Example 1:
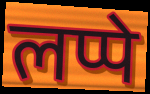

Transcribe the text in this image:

लप्पे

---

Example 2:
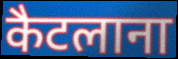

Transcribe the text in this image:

कैटलाना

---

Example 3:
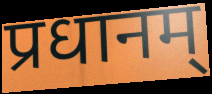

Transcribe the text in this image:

प्रधानम्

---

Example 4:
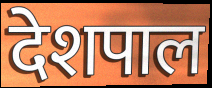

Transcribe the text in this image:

देशपाल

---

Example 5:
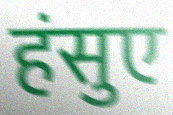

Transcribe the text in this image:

हंसुए